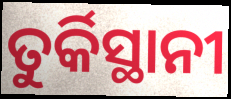
ତୁର୍କିସ୍ଥାନୀ